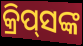
କ୍ରିପ୍‌ସଙ୍କ